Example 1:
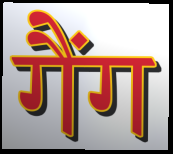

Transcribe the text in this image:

गैंग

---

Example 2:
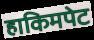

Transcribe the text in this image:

हाकिमपेट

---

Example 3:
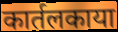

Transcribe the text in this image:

कार्तलकाया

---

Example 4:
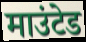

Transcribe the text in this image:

माउंटेड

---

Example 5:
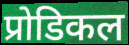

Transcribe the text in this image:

प्रोडिकल